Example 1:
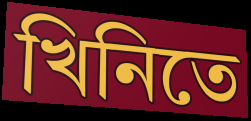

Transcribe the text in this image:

খিনিতে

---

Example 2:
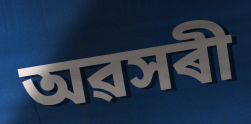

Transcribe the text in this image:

অৱসৰী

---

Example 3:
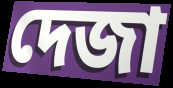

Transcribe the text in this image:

দেজা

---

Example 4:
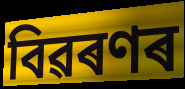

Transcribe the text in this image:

বিৱৰণৰ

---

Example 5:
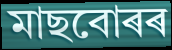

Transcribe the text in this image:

মাছবোৰৰ